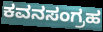
ಕವನಸಂಗ್ರಹ